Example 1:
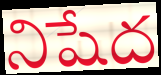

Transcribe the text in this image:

నిషేద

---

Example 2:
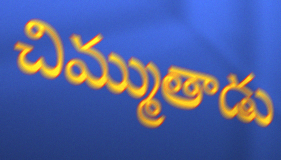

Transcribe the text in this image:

చిమ్ముతాడు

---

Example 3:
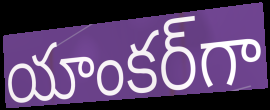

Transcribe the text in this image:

యాంకర్‌గా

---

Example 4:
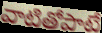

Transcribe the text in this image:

వాటితోపాటే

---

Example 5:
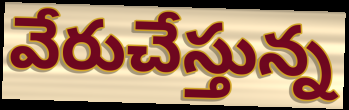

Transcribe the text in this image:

వేరుచేస్తున్న